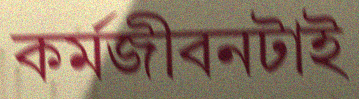
কর্মজীবনটাই